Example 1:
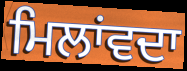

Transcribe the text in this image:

ਮਿਲਾਂਵਦਾ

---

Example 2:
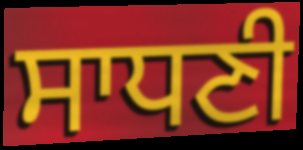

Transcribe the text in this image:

ਸਾਧਣੀ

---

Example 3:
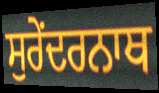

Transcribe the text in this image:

ਸੁਰੇਂਦਰਨਾਥ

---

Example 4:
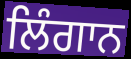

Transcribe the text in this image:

ਲਿੰਗਾਨ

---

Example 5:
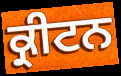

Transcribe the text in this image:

ਕ੍ਰੀਟਨ